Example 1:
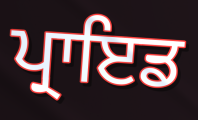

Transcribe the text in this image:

ਪ੍ਰਾਇਡ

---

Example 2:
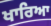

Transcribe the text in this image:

ਖਾਰਿਆ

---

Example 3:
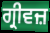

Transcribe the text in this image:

ਗ੍ਰੀਵਜ਼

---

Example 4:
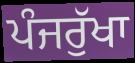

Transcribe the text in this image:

ਪੰਜਰੁੱਖਾ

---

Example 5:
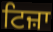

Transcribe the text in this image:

ਟਿਜ਼ਾ